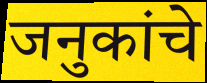
जनुकांचे